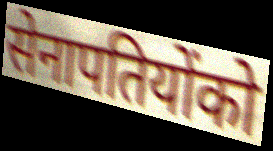
सेनापतियोंको